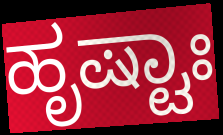
ಹೃಷ್ಟಾಃ